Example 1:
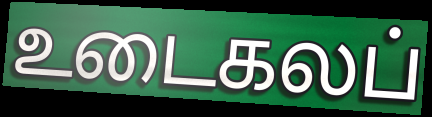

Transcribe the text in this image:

உடைகலப்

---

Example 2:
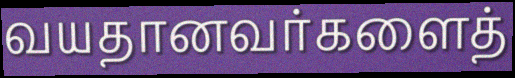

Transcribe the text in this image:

வயதானவர்களைத்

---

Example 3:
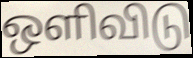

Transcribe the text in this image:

ஒளிவிடு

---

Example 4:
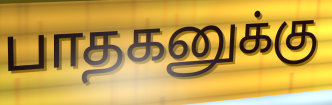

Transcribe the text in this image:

பாதகனுக்கு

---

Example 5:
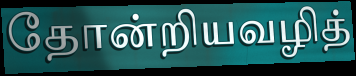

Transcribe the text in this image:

தோன்றியவழித்